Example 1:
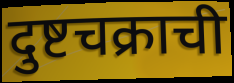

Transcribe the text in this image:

दुष्टचक्राची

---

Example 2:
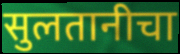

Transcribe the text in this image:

सुलतानीचा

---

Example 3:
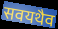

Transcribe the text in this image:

सवयथैव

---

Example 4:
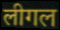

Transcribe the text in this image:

लीगल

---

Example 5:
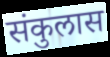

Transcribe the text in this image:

संकुलास